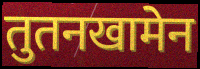
तुतनखामेन